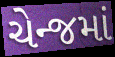
ચેન્જમાં